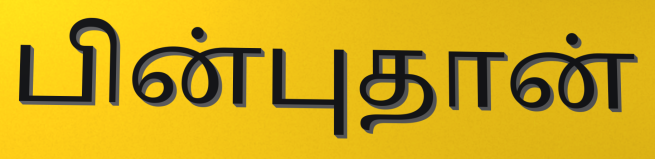
பின்புதான்